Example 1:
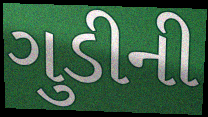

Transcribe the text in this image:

ગુડીની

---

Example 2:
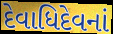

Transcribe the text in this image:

દેવાધિદેવનાં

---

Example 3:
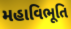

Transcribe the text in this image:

મહાવિભૂતિ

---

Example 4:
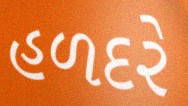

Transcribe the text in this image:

હળદરે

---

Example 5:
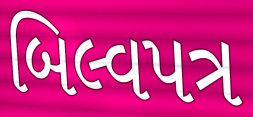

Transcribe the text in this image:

બિલ્વપત્ર